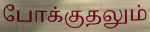
போக்குதலும்